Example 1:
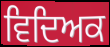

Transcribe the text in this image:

ਵਿਦਿਅਕ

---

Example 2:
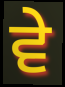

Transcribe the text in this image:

ਵੇ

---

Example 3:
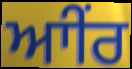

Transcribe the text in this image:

ਆੀਂਰ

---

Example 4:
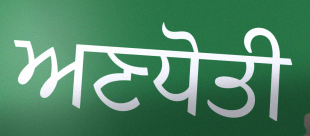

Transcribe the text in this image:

ਅਣਧੋਤੀ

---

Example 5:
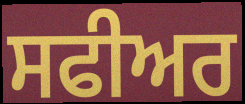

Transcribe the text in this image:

ਸਫੀਅਰ